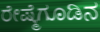
ರೇಷ್ಮೆಗೂಡಿನ